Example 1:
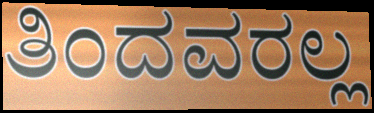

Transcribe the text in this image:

ತಿಂದವರಲ್ಲ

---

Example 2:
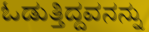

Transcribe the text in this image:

ಓಡುತ್ತಿದ್ದವನನ್ನು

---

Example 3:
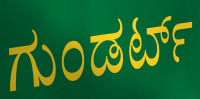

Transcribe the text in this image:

ಗುಂಡರ್ಟ್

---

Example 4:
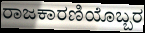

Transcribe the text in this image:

ರಾಜಕಾರಣಿಯೊಬ್ಬರ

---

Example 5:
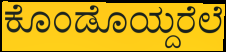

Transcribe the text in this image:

ಕೊಂಡೊಯ್ದರೆಲೆ